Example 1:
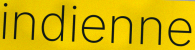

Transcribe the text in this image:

indienne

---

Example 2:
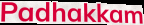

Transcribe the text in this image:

Padhakkam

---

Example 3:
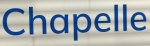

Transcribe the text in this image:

Chapelle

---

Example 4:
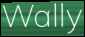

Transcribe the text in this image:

Wally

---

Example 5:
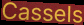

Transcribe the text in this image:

Cassels